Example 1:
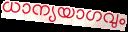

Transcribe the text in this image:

ധാന്യയാഗവും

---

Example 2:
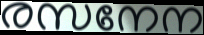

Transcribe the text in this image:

രസനേന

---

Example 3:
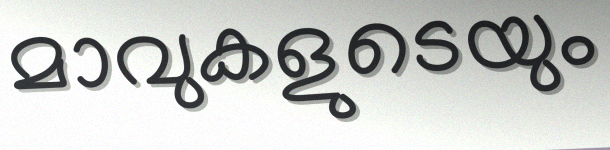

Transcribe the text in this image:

മാവുകളുടെയും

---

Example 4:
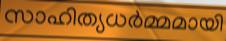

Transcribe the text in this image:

സാഹിത്യധർമ്മമായി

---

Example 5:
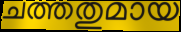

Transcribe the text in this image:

ചത്തതുമായ